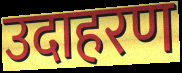
उदाहरण